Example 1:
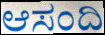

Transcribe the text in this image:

ಆಸಂದಿ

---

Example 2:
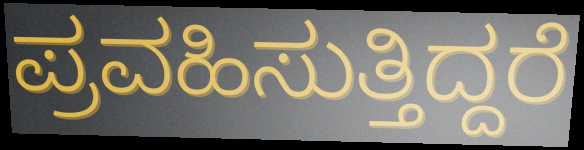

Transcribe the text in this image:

ಪ್ರವಹಿಸುತ್ತಿದ್ದರೆ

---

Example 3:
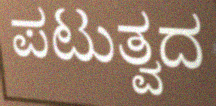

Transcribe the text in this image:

ಪಟುತ್ವದ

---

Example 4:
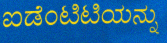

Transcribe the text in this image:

ಐಡೆಂಟಿಟಿಯನ್ನು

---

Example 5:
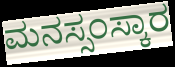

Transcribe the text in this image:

ಮನಸ್ಸಂಸ್ಕಾರ